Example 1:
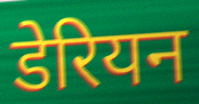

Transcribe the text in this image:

डेरियन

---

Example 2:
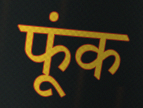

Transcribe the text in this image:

फूंक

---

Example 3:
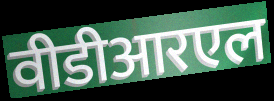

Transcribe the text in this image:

वीडीआरएल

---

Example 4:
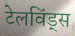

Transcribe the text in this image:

टेलविंड्स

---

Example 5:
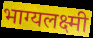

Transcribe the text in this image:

भाग्यलक्ष्मी